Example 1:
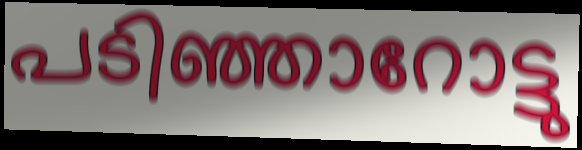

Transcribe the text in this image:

പടിഞ്ഞാറോട്ടു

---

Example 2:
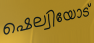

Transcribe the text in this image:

ഷെല്വിയോട്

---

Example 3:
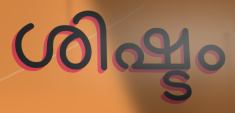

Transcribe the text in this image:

ശിഷ്ടം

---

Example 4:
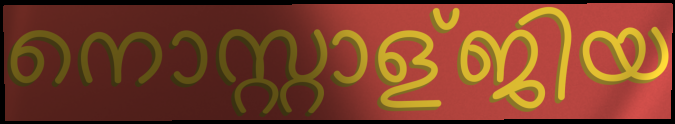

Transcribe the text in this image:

നൊസ്റ്റാള്ജിയ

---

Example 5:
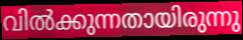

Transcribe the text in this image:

വിൽക്കുന്നതായിരുന്നു